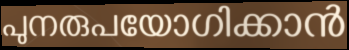
പുനരുപയോഗിക്കാൻ